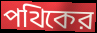
পথিকের